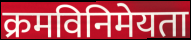
क्रमविनिमेयता